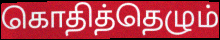
கொதித்தெழும்